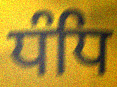
ਧੰਧਿ